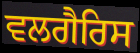
ਵਲਗੈਰਿਸ